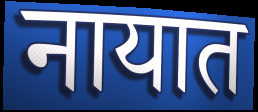
नायात